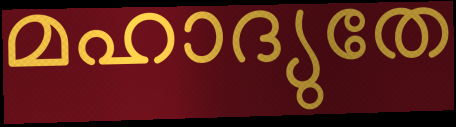
മഹാദ്യുതേ